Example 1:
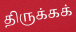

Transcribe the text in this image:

திருக்கக்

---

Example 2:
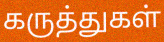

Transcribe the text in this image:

கருத்துகள்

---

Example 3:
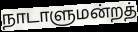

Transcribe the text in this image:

நாடாளுமன்றத்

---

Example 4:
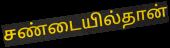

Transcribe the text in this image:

சண்டையில்தான்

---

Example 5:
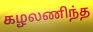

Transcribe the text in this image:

கழலணிந்த